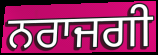
ਨਰਾਜਗੀ